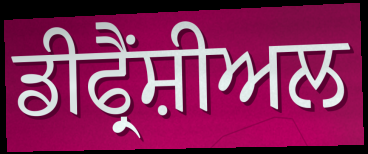
ਡੀਫ੍ਰੈਂਸ਼ੀਅਲ